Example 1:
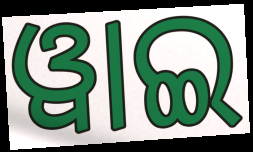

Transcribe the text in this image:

ୱାଇ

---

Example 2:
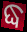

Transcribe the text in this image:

ଦ୍ଧ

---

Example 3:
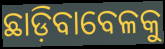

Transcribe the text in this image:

ଛାଡ଼ିବାବେଳକୁ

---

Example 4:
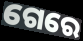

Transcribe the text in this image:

ଗେରେ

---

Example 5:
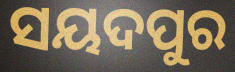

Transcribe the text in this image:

ସୟଦପୁର